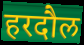
हरदौल